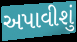
અપાવીશું